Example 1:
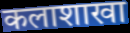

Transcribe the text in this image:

कलाशाखा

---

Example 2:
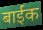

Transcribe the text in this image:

बाईक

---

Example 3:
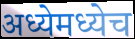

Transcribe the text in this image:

अध्येमध्येच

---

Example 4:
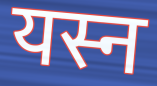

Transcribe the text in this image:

यस्न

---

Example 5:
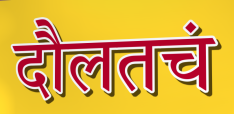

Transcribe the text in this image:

दौलतचं